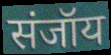
संजॉय